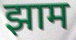
झाम